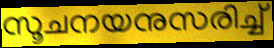
സൂചനയനുസരിച്ച്